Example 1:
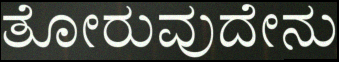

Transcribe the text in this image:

ತೋರುವುದೇನು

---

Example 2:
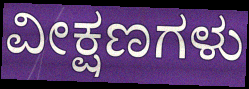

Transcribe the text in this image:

ವೀಕ್ಷಣಗಳು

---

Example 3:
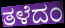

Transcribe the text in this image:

ತಳೆದಂ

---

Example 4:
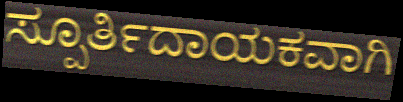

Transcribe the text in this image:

ಸ್ಪೂರ್ತಿದಾಯಕವಾಗಿ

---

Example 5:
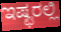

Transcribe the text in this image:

ಇಷ್ಟರಲ್ಲಿ